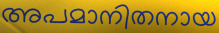
അപമാനിതനായ